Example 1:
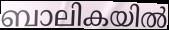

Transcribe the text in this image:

ബാലികയിൽ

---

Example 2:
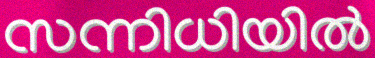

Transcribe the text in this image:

സന്നിധിയിൽ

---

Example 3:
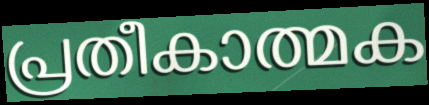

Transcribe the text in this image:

പ്രതീകാത്മക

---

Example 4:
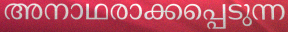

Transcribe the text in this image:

അനാഥരാക്കപ്പെടുന്ന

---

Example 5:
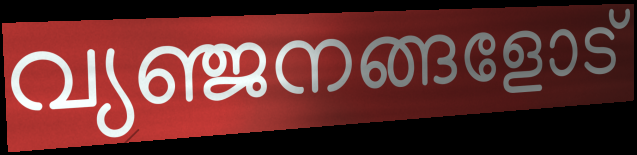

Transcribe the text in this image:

വ്യഞ്ജനങ്ങളോട്